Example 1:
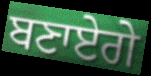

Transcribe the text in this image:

ਬਣਾਏਗੇ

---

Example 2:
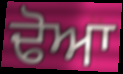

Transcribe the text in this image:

ਢੋਆ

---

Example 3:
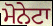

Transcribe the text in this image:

ਮੋਨੇਟਾ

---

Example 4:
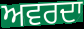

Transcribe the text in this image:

ਅਵਰਦਾ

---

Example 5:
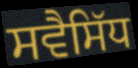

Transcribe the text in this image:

ਸਵੈਸਿੱਧ